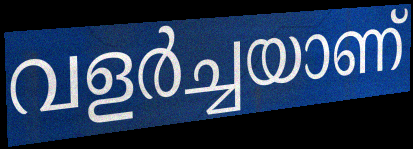
വളർച്ചയാണ്